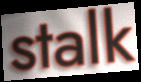
stalk